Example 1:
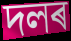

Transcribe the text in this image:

দলৰ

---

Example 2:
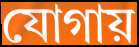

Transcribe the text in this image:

যোগায়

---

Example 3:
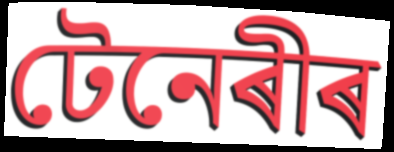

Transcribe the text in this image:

টেনেৰীৰ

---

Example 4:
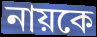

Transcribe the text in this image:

নায়কে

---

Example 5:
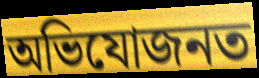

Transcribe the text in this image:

অভিযোজনত